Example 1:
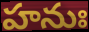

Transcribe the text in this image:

హనుః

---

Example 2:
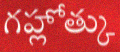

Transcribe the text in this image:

గహ్లోత్కు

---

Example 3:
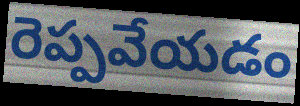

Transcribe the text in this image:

రెప్పవేయడం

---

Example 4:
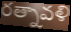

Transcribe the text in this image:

రత్నావళి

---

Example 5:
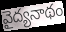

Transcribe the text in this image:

వైద్యనాథం